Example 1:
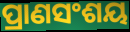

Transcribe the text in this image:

ପ୍ରାଣସଂଶୟ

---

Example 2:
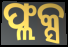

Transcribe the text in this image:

ଫ୍ଲକ୍ସ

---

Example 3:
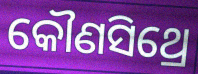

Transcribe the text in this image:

କୌଣସିଥ୍ରେ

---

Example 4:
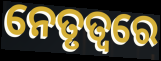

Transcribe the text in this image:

ନେତୃତ୍ଵରେ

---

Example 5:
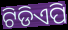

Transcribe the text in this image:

ଟିଡିଏପି